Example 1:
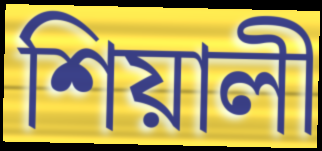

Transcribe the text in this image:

শিয়ালী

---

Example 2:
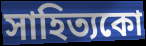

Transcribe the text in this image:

সাহিত্যকো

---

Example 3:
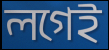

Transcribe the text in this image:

লগেই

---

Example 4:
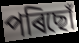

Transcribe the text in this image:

পৰিছোঁ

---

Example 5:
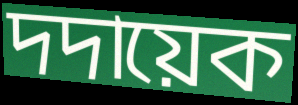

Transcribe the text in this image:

দদায়েক